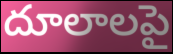
దూలాలపై